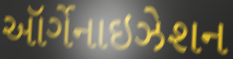
ઑર્ગેનાઇઝેશન